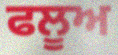
ਫਲੂਅ